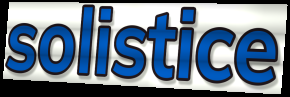
solistice